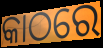
କାଠରେ